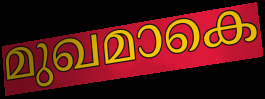
മുഖമാകെ